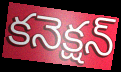
కనెక్షన్